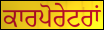
ਕਾਰਪੋਰੇਟਰਾਂ